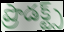
ప్రొడక్ట్స్